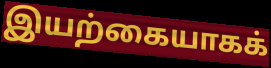
இயற்கையாகக்